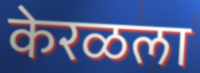
केरळला